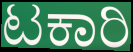
ಟಕಾರಿ